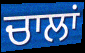
ਚਾਲਾਂ